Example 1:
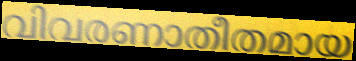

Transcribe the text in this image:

വിവരണാതീതമായ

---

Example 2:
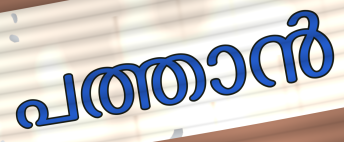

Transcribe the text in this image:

പത്താൻ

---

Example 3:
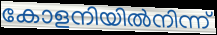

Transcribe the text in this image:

കോളനിയിൽനിന്ന്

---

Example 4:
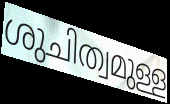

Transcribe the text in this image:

ശുചിത്വമുള്ള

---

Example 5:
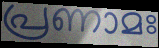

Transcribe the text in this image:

പ്രണാമഃ